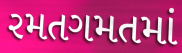
રમતગમતમાં